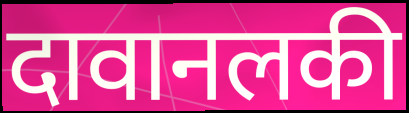
दावानलकी